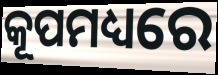
କୂପମଧ୍ୟରେ